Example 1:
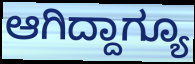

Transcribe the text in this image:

ಆಗಿದ್ದಾಗ್ಯೂ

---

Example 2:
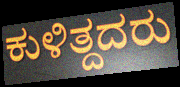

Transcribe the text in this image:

ಕುಳಿತ್ದದರು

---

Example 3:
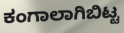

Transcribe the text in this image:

ಕಂಗಾಲಾಗಿಬಿಟ್ಟ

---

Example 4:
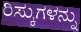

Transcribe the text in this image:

ರಿಸ್ಕುಗಳನ್ನು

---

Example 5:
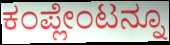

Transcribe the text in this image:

ಕಂಪ್ಲೇಂಟನ್ನೂ